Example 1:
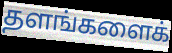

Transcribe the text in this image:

தளங்களைக்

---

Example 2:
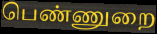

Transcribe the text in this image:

பெண்ணுறை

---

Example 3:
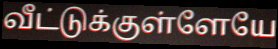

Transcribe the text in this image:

வீட்டுக்குள்ளேயே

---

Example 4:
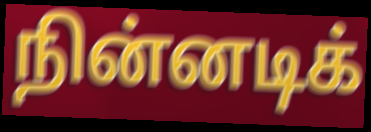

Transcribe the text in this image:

நின்னடிக்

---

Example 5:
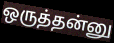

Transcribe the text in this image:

ஒருத்தன்னு